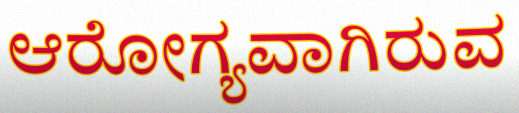
ಆರೋಗ್ಯವಾಗಿರುವ